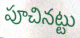
పూచినట్టు